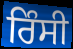
ਰਿੰਸੀ